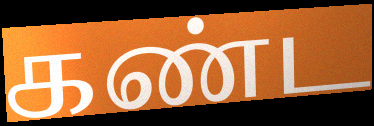
கண்ட